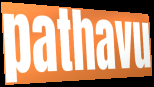
pathavu